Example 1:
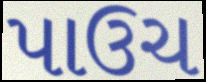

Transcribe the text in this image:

પાઉચ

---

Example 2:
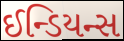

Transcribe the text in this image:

ઈન્ડિયન્સ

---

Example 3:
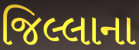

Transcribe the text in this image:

જિલ્લાના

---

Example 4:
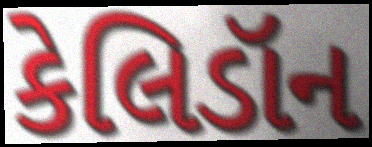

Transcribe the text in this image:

કેલિડૉન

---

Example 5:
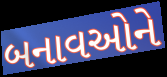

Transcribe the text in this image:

બનાવઓને